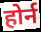
होर्न